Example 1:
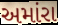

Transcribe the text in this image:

અમાંરા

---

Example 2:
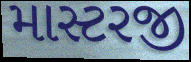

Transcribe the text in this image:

માસ્ટરજી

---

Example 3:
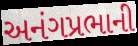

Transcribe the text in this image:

અનંગપ્રભાની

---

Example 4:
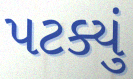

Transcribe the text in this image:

પટક્યું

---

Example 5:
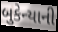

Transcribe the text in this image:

બુકેન્યાની